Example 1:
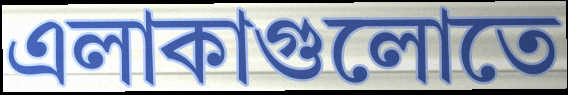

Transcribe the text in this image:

এলাকাগুলোতে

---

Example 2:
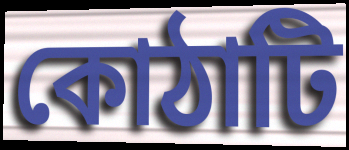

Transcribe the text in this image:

কোঠাটি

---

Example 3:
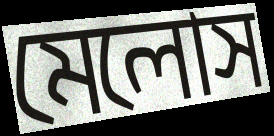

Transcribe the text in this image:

মেলোস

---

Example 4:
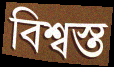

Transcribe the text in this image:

বিশ্বস্ত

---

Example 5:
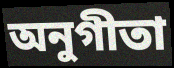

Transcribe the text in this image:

অনুগীতা